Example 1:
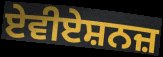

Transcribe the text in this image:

ਏਵੀਏਸ਼ਨਜ਼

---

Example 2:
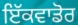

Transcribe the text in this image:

ਇੱਕਵਾਡੋਰ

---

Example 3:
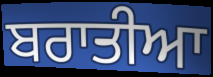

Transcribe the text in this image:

ਬਰਾਤੀਆ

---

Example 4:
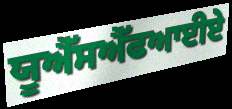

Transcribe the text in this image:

ਯੂਐੱਸਐੱਫਆਈਏ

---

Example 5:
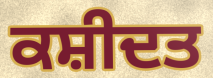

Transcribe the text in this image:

ਕਸ਼ੀਦਤ